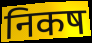
निकष